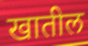
खातील